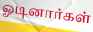
ஓடினார்கள்